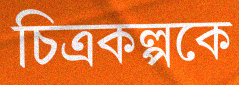
চিত্রকল্পকে